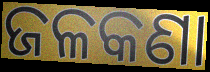
ଜଳକଣା